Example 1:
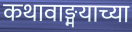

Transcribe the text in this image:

कथावाङ्मयाच्या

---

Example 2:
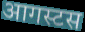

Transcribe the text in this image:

आगस्टस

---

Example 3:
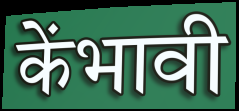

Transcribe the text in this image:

केंभावी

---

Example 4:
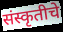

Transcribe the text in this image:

संस्कृतीचे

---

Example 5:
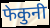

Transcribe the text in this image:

फेकुनी